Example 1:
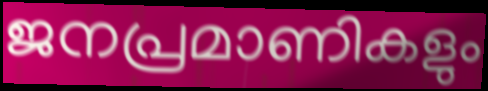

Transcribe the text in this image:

ജനപ്രമാണികളും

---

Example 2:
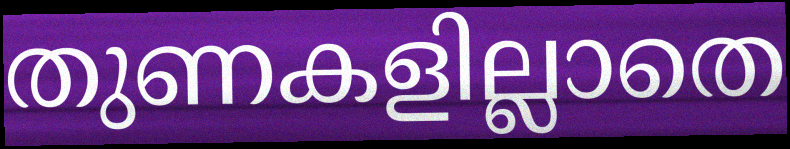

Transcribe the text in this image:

തുണകളില്ലാതെ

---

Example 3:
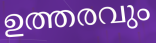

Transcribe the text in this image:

ഉത്തരവും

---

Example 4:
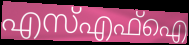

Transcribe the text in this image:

എസ്എഫ്ഐ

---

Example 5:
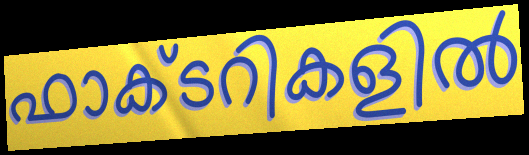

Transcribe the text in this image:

ഫാക്ടറികളിൽ